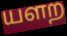
யளற